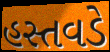
હસ્તવડે